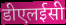
डीएलईसी